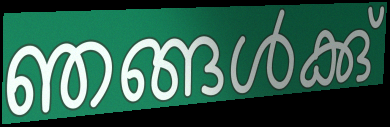
ഞങ്ങൾക്കു്